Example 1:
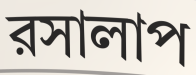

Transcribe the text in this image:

রসালাপ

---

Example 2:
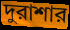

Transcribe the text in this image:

দুরাশার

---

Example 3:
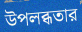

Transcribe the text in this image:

উপলব্ধতার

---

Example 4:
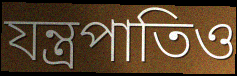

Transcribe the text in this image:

যন্ত্রপাতিও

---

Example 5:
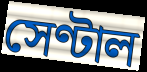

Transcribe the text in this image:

সেণ্টাল